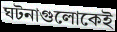
ঘটনাগুলোকেই